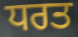
ਧਰਤ